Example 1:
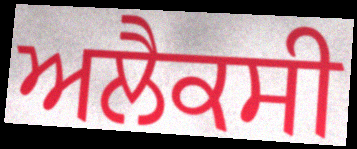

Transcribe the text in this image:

ਅਲੈਕਸੀ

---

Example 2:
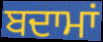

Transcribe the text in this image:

ਬਦਾਮਾਂ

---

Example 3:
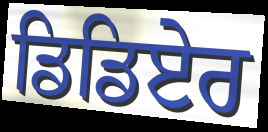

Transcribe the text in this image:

ਡਿਡਿਏਰ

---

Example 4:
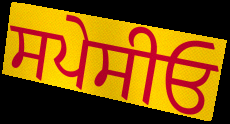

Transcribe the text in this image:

ਸਪੇਸੀਓ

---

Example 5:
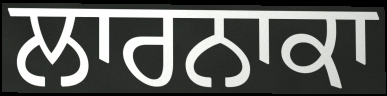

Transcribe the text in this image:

ਲਾਰਨਾਕਾ